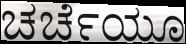
ಚರ್ಚೆಯೂ